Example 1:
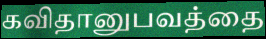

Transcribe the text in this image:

கவிதானுபவத்தை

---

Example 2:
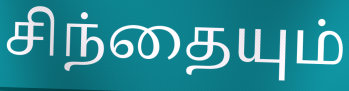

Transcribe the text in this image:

சிந்தையும்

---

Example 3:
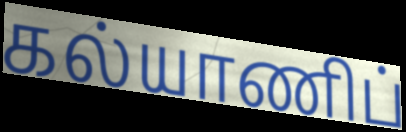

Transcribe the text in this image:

கல்யாணிப்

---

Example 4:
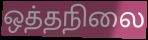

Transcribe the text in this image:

ஒத்தநிலை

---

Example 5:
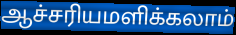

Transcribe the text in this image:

ஆச்சரியமளிக்கலாம்